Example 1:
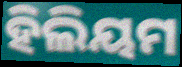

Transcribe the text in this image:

ହିଲିୟମ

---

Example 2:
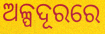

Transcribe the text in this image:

ଅଳ୍ପଦୂରରେ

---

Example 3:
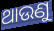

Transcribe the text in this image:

ଥାଉଣୁ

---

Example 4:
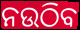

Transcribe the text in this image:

ନଉଠିବ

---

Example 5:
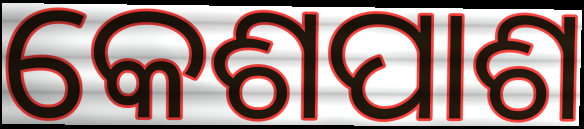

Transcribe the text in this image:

କେଶପାଶ